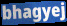
bhagyej